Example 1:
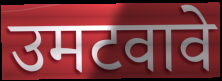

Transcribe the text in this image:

उमटवावे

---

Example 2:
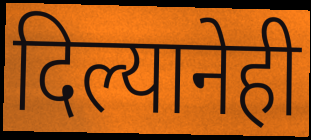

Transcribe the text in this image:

दिल्यानेही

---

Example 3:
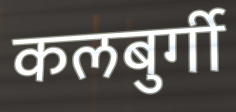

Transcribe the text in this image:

कलबुर्गी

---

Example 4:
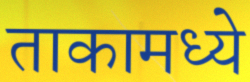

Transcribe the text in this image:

ताकामध्ये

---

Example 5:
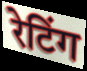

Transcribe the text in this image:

रेटिंग